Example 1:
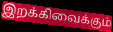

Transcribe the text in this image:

இறக்கிவைக்கும்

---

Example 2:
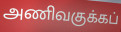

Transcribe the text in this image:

அணிவகுக்கப்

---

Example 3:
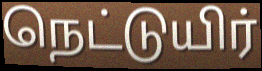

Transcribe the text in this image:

நெட்டுயிர்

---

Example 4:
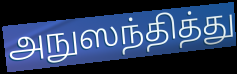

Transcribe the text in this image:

அநுஸந்தித்து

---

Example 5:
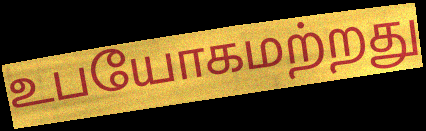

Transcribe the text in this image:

உபயோகமற்றது